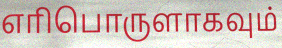
எரிபொருளாகவும்